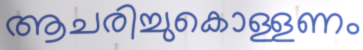
ആചരിച്ചുകൊള്ളണം